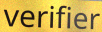
verifier